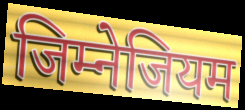
जिम्नेजियम